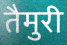
तैमुरी